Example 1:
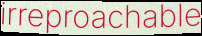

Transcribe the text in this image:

irreproachable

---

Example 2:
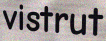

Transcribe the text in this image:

vistrut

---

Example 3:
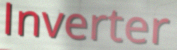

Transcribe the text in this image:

Inverter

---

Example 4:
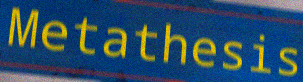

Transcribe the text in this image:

Metathesis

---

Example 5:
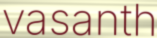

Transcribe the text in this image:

vasanth